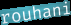
rouhani